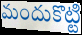
మందుకొట్టి